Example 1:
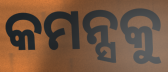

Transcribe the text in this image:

କମନ୍ସକୁ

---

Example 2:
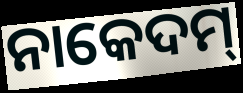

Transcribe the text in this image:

ନାକେଦମ୍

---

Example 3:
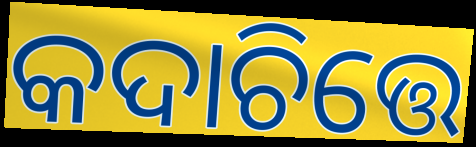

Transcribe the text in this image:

କଦାଚିତ୍ତେ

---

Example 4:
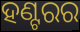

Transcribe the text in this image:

ହଣ୍ଟରର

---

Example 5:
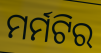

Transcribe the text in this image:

ମର୍ମଟିର